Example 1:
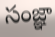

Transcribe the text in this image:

సంజ్ఞా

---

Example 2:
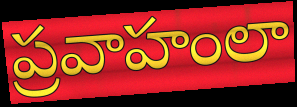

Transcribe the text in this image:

ప్రవాహంలా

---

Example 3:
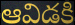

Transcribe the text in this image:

ఆవిడకి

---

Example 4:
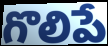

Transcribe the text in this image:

గొలిపే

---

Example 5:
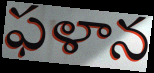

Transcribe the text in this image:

ఫళాన